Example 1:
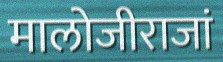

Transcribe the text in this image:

मालोजीराजां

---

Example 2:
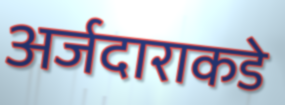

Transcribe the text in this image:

अर्जदाराकडे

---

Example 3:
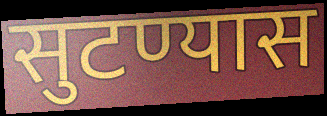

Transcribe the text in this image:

सुटण्यास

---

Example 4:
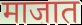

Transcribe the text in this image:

माजात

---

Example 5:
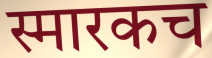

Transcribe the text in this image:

स्मारकच